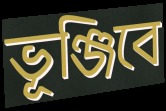
ভূঞ্জিবে